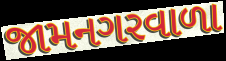
જામનગરવાળા